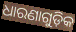
ଧାରଣାଗୁଡ଼ିକ